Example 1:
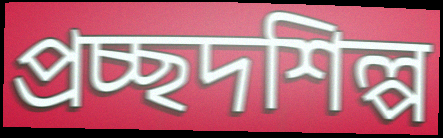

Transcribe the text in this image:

প্রচ্ছদশিল্প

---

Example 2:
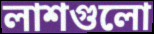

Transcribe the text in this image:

লাশগুলো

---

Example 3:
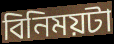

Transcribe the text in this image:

বিনিময়টা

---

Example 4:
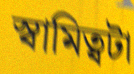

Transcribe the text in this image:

স্বামিত্বটা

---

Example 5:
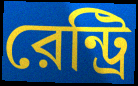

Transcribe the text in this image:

রেন্ট্রি